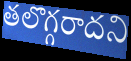
తలొగ్గరాదని